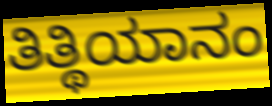
ತಿತ್ಥಿಯಾನಂ